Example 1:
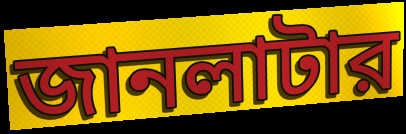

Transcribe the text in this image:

জানলাটার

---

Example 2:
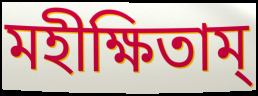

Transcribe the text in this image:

মহীক্ষিতাম্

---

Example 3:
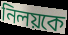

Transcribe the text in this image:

নিলয়কে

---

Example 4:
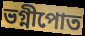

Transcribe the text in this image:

ভগ্নীপোত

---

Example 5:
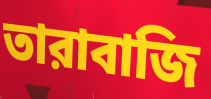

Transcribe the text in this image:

তারাবাজি